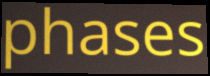
phases